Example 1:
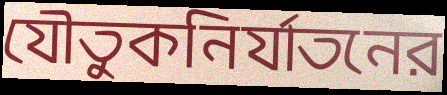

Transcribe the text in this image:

যৌতুকনির্যাতনের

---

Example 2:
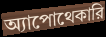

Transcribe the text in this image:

অ্যাপোথেকারি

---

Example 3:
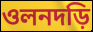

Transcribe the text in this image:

ওলনদড়ি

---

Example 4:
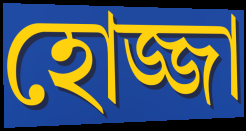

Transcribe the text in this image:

হোজ্জা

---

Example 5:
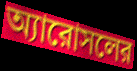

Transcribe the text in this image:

অ্যারোসলের